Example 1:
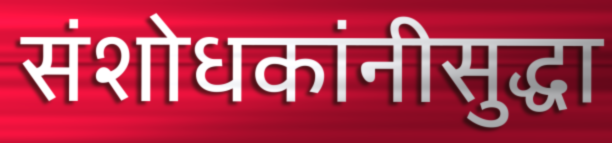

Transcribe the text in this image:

संशोधकांनीसुद्धा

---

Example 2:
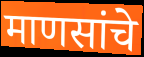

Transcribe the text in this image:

माणसांचे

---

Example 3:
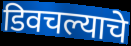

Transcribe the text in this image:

डिवचल्याचे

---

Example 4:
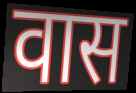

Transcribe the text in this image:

वास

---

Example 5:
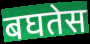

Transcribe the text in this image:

बघतेस